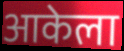
आकेला